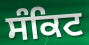
ਸੰਕਿਟ